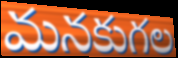
మనకుగల